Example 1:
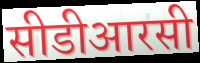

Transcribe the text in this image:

सीडीआरसी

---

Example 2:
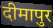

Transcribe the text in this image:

दीमापुर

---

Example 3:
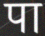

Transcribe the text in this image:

पा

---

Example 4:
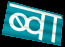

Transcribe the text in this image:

ब्वा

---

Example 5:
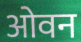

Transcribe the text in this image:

ओवन